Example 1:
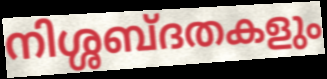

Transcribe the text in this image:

നിശ്ശബ്ദതകളും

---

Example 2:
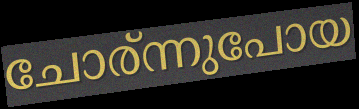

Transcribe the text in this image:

ചോര്ന്നുപോയ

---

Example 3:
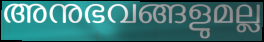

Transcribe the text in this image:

അനുഭവങ്ങളുമല്ല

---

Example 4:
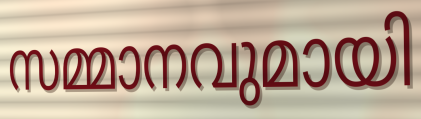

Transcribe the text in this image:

സമ്മാനവുമായി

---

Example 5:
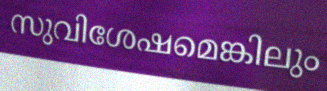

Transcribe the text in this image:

സുവിശേഷമെങ്കിലും